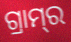
ଗ୍ରାମ୍‌ର